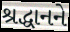
શ્રદ્ધાનને